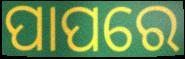
ପାପରେ